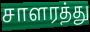
சாளரத்து